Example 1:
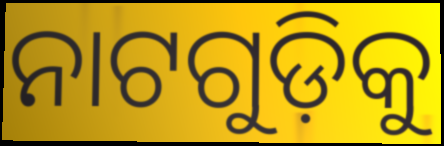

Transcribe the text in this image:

ନାଟଗୁଡ଼ିକୁ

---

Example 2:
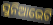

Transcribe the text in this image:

ସୁନିଆଭେଟି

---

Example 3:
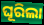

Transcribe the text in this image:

ଘୂରିଲା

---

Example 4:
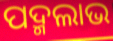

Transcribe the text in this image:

ପଦ୍ମଲାଭ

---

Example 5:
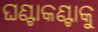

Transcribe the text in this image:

ଘଣ୍ଟାକଣ୍ଟାକୁ